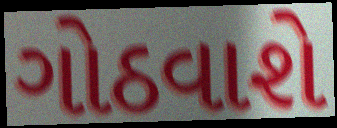
ગોઠવાશે